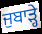
ਜੁਬਾੜ੍ਹੇ